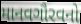
માનવગૌરવનો